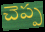
చెప్ప